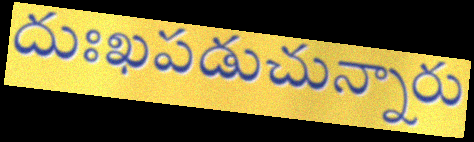
దుఃఖపడుచున్నారు